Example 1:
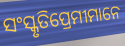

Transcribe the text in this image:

ସଂସ୍କୃତିପ୍ରେମୀମାନେ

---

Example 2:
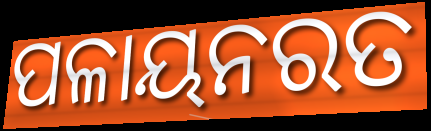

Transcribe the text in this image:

ପଳାୟନରତ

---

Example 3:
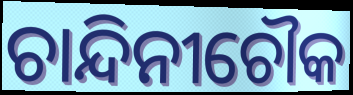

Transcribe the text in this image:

ଚାନ୍ଦିନୀଚୌକ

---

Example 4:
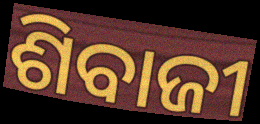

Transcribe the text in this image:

ଶିବାଜୀ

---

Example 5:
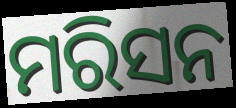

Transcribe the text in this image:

ମରିସନ